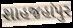
શાહજહાંપુર